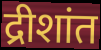
द्रीशांत